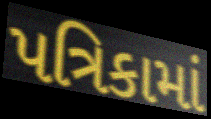
પત્રિકામાં